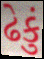
ઢેકું